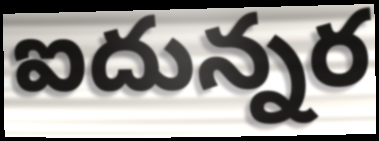
ఐదున్నర